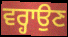
ਵਰ੍ਹਾਉਣ